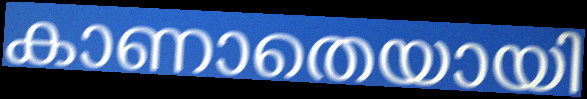
കാണാതെയായി